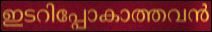
ഇടറിപ്പോകാത്തവൻ